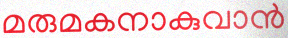
മരുമകനാകുവാൻ